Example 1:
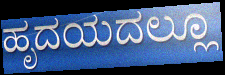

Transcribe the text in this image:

ಹೃದಯದಲ್ಲೂ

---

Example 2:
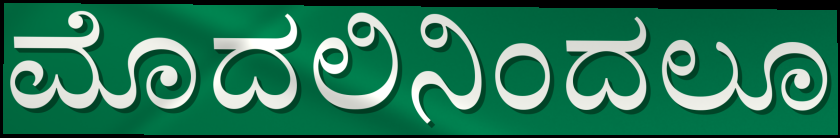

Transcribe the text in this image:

ಮೊದಲಿನಿಂದಲೂ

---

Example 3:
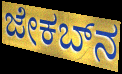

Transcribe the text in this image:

ಜೇಕಬ್‌ನ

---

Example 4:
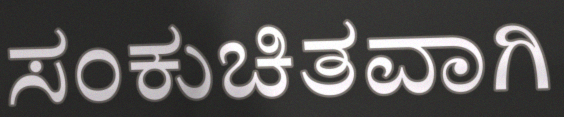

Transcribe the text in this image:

ಸಂಕುಚಿತವಾಗಿ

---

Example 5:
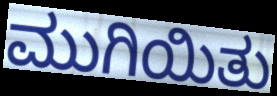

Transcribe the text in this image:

ಮುಗಿಯಿತು